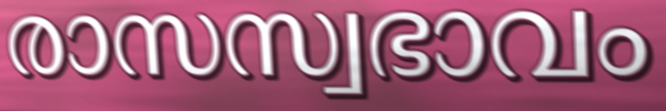
രാസസ്വഭാവം